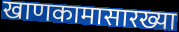
खाणकामासारख्या